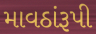
માવઠાંરૂપી